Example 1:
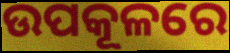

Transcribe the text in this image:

ଉପକୂଳରେ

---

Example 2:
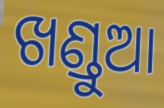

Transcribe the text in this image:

ଖଣ୍ଡୁଆ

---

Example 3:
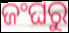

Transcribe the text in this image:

ଜଂଘରୁ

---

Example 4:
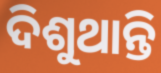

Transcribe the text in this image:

ଦିଶୁଥାନ୍ତି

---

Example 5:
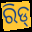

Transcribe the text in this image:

ରିଡ୍